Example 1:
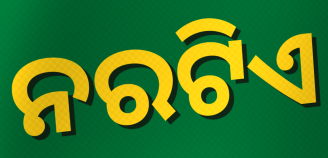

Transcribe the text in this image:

ନରଟିଏ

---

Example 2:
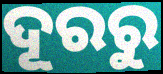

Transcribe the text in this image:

ଦୂରରୁ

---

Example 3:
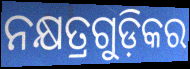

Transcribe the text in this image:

ନକ୍ଷତ୍ରଗୁଡ଼ିକର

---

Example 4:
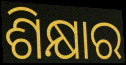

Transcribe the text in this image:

ଶିକ୍ଷାର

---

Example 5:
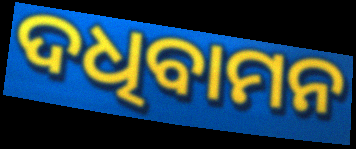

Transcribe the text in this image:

ଦଧିବାମନ